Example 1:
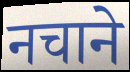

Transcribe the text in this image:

नचाने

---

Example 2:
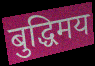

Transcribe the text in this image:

बुद्धिमय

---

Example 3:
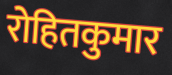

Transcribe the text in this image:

रोहितकुमार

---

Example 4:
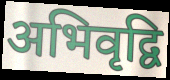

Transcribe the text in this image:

अभिवृद्वि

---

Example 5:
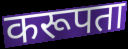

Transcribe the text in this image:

करूपता